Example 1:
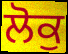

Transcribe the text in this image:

ਲੋਕੁ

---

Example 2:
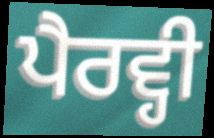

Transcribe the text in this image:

ਪੈਰਵ੍ਹੀ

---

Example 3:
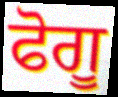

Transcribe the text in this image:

ਫੋਗੂ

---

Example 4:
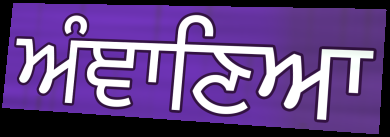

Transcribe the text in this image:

ਅੰਞਾਣਿਆ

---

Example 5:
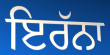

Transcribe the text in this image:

ਇਰੱਨਾ